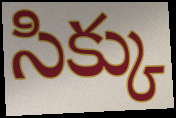
సిక్కు